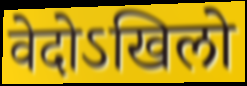
वेदोऽखिलो